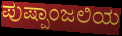
ಪುಷ್ಪಾಂಜಲಿಯ